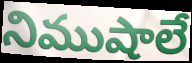
నిముషాలే